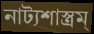
নাট্যশাস্ত্রম্